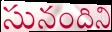
సునందిని